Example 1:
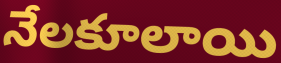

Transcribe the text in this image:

నేలకూలాయి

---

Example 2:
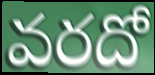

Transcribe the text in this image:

వరదో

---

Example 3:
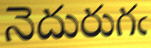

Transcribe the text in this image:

నెదురుగఁ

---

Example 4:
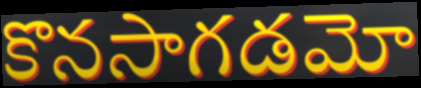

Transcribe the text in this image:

కొనసాగడమో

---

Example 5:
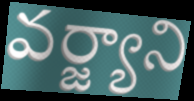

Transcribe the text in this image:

వర్జ్యాని